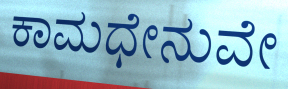
ಕಾಮಧೇನುವೇ